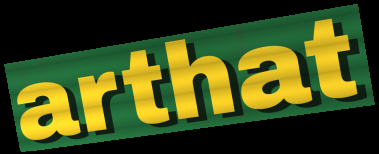
arthat